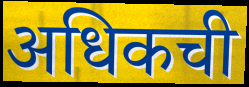
अधिकची